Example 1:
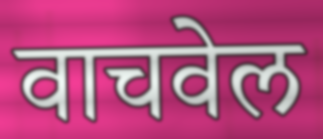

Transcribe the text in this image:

वाचवेल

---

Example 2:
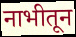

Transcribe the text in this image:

नाभीतून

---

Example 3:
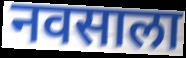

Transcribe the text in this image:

नवसाला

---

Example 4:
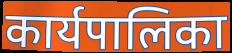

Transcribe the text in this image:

कार्यपालिका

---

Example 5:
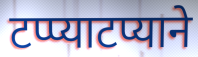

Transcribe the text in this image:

टप्प्याटप्याने